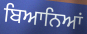
ਬਿਆਨਿਆਂ